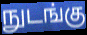
நுடங்கு